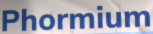
Phormium